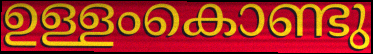
ഉള്ളംകൊണ്ടു